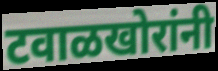
टवाळखोरांनी